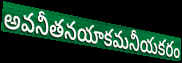
అవనీతనయాకమనీయకరం